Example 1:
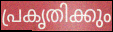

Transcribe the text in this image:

പ്രകൃതിക്കും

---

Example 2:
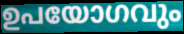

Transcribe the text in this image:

ഉപയോഗവും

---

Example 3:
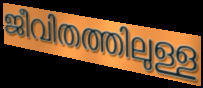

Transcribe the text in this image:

ജീവിതത്തിലുള്ള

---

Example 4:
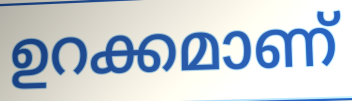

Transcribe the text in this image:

ഉറക്കമാണ്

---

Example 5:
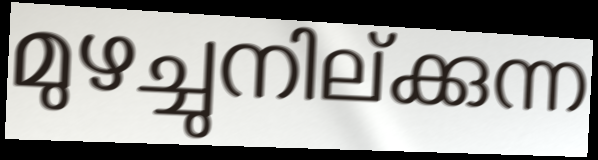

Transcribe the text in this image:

മുഴച്ചുനില്ക്കുന്ന